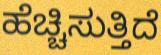
ಹೆಚ್ಚಿಸುತ್ತಿದೆ